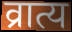
व्रात्य